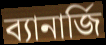
ব্যানার্জি